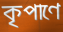
কৃপাণে